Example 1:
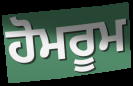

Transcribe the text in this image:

ਹੋਮਰੂਮ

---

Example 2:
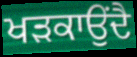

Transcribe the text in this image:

ਖੜਕਾਉਂਦੈ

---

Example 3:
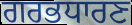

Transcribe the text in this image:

ਗਰਭਧਾਰਣ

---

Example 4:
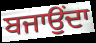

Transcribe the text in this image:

ਬਜਾਉਂਦਾ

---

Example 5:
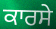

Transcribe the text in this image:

ਕਾਰਸੇ